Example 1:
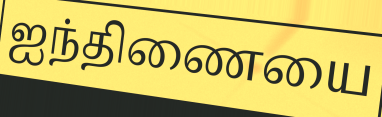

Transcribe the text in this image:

ஐந்திணையை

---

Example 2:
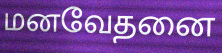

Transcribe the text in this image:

மனவேதனை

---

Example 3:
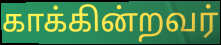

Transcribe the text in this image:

காக்கின்றவர்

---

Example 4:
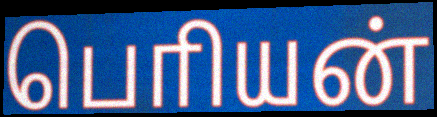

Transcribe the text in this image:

பெரியன்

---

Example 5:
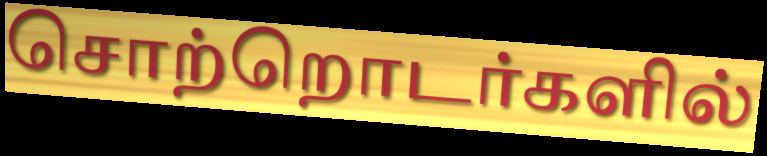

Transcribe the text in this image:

சொற்றொடர்களில்